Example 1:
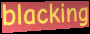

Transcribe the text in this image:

blacking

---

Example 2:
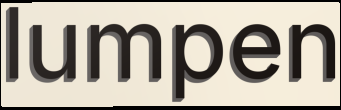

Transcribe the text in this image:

lumpen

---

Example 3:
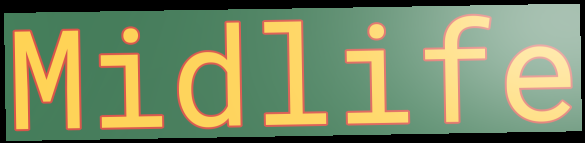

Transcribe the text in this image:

Midlife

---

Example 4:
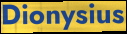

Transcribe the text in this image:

Dionysius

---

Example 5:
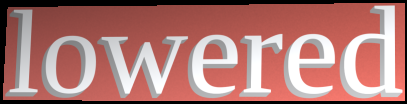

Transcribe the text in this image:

lowered